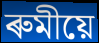
ৰুমীয়ে